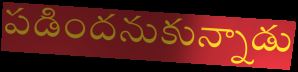
పడిందనుకున్నాడు